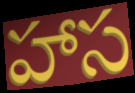
హాస